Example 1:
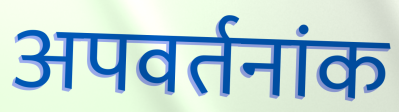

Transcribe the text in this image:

अपवर्तनांक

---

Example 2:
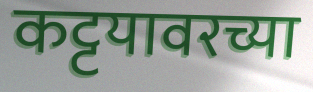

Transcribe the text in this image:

कट्टयावरच्या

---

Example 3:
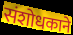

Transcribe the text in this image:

संशोधकाने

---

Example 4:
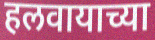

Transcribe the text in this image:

हलवायाच्या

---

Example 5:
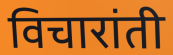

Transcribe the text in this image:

विचारांती